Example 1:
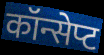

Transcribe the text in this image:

कॉन्‍सेप्‍ट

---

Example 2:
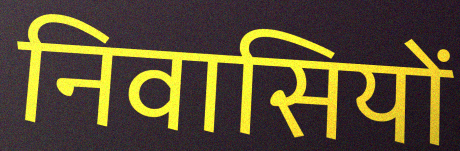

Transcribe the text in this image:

निवासियों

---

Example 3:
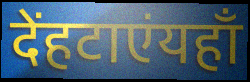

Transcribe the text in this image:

देंहटाएंयहाँ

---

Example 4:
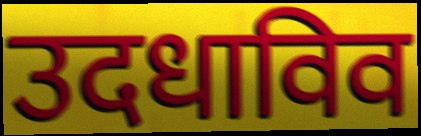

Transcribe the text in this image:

उदधाविव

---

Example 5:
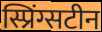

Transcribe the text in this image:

स्प्रिंग्सटीन